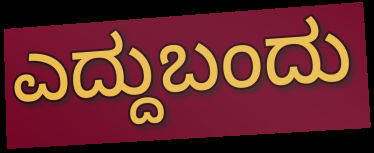
ಎದ್ದುಬಂದು